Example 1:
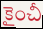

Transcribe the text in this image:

కైంచీ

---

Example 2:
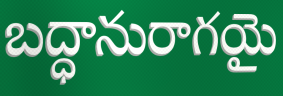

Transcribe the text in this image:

బద్ధానురాగయై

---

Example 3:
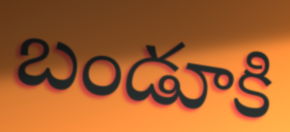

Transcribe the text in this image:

బండూకి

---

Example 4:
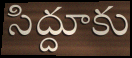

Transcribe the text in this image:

సిద్దూకు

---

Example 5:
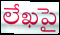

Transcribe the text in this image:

లేఖపై